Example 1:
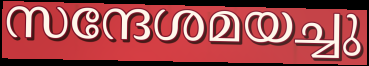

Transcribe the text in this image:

സന്ദേശമയച്ചു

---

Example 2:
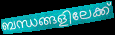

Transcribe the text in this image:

ബന്ധങ്ങളിലേക്ക്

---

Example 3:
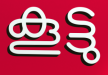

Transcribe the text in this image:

കൂട്ടു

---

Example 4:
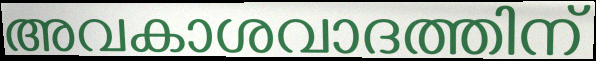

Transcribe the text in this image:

അവകാശവാദത്തിന്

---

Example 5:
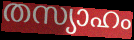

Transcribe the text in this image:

തസ്യാഹം